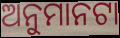
ଅନୁମାନଟା